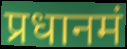
प्रधानमं